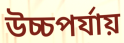
উচ্চপর্যায়